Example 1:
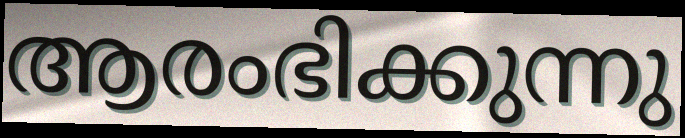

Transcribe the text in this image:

ആരംഭിക്കുന്നു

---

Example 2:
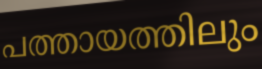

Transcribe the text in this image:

പത്തായത്തിലും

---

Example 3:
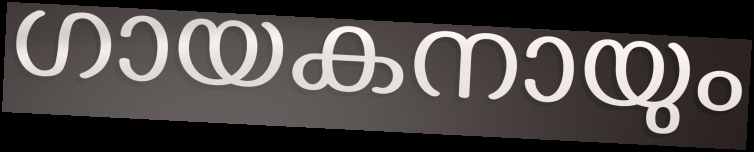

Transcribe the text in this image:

ഗായകനായും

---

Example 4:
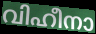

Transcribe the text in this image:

വിഹീനാ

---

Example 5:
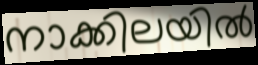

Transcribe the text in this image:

നാക്കിലയിൽ